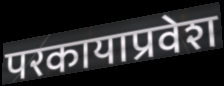
परकायाप्रवेश